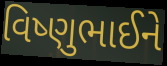
વિષ્ણુભાઈને